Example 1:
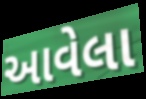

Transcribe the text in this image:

આવેલા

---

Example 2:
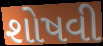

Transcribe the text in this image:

શોષવી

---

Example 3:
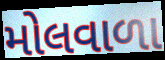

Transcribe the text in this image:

મોલવાળા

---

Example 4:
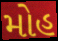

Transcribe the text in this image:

મોહ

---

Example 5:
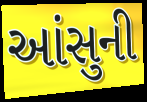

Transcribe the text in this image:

આંસુની